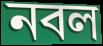
নবল